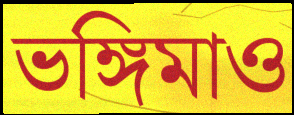
ভঙ্গিমাও